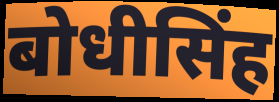
बोधीसिंह